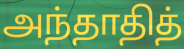
அந்தாதித்